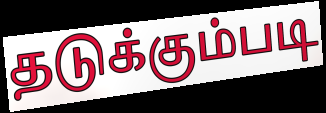
தடுக்கும்படி